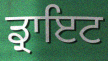
ਡ੍ਰਾਇਟ